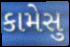
કામેસુ